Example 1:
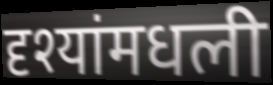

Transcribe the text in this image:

दृश्यांमधली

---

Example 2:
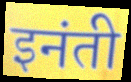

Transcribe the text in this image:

इनंती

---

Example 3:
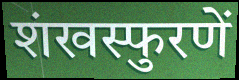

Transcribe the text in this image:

शंखस्फुरणें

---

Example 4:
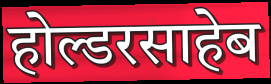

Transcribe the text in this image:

होल्डरसाहेब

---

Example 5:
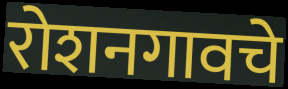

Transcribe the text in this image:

रोशनगावचे